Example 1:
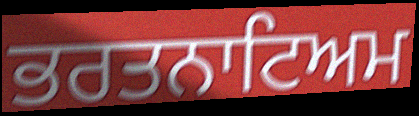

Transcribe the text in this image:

ਭਰਤਨਾਟਿਅਮ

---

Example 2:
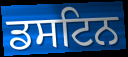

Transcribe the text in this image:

ਡਸਟਿਨ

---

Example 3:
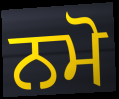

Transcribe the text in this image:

ਨਮੋ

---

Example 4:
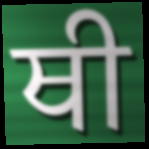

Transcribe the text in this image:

ਥੀ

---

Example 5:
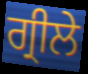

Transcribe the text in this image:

ਗ੍ਰੀਲੇ